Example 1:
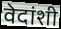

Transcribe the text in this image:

वेदांशी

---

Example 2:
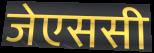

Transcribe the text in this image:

जेएससी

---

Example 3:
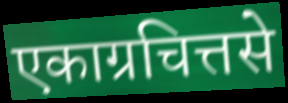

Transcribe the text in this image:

एकाग्रचित्तसे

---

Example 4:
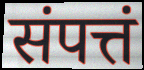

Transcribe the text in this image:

संपत्तं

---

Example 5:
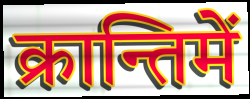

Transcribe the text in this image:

क्रान्तिमें